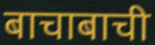
बाचाबाची